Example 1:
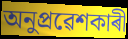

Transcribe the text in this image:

অনুপ্ৰৱেশকাৰী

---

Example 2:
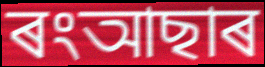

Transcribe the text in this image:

ৰংআছাৰ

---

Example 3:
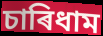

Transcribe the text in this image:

চাৰিধাম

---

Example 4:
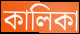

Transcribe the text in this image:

কালিকা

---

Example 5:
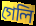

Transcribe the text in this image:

গেলি